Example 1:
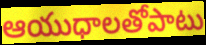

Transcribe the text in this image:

ఆయుధాలతోపాటు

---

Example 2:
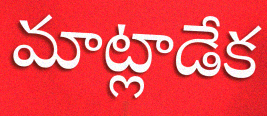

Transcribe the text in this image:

మాట్లాడేక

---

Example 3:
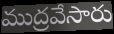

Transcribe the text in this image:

ముద్రవేసారు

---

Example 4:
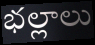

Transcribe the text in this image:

భల్లాలు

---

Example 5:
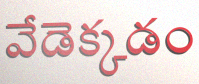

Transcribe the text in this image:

వేడెక్కడం